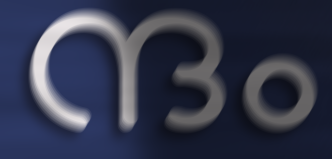
ന്ദം